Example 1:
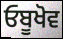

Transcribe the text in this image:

ਓਬੂਖੋਵ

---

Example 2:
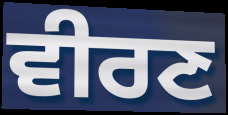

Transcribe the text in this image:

ਵੀਰਣ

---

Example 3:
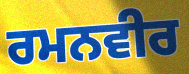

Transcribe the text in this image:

ਰਮਨਵੀਰ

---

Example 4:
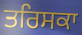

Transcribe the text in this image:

ਤਰਿਸਕਾ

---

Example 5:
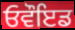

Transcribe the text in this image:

ਓਵੌਇਡ